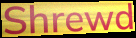
Shrewd